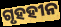
ଗୃହହୀନ